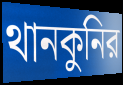
থানকুনির